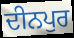
ਦੀਨਪੁਰ